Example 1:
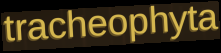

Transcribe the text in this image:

tracheophyta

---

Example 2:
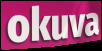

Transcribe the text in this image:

okuva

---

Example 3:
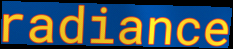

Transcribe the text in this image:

radiance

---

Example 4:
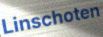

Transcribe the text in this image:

Linschoten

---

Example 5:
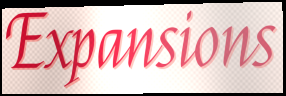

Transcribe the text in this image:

Expansions